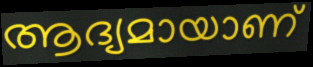
ആദ്യമായാണ്